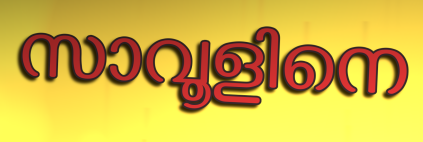
സാവൂളിനെ